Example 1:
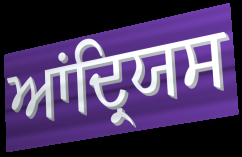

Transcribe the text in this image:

ਆਂਦ੍ਰਿਯਸ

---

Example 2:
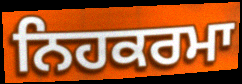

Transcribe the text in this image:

ਨਿਹਕਰਮਾ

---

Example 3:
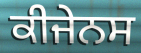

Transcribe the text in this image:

ਕੀਜੇਨਸ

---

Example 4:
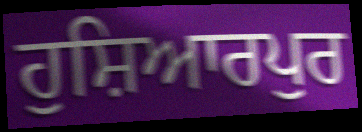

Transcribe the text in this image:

ਹੁਸ਼ਿਆਰਪੁਰ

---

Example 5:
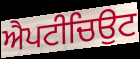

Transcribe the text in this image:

ਐਪਟੀਚਿਉਟ